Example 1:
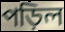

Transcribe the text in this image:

পড়িল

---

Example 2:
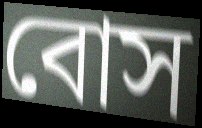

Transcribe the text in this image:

বোস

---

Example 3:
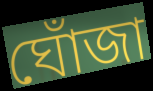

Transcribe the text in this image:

ঘোঁজা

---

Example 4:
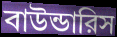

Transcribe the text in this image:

বাউন্ডারিস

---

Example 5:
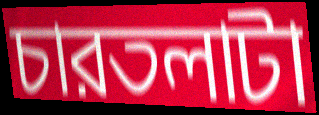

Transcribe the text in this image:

চারতলাটা